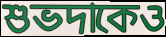
শুভদাকেও